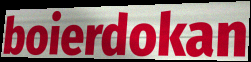
boierdokan